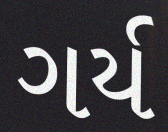
ગર્ય